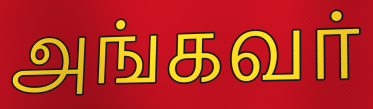
அங்கவர்